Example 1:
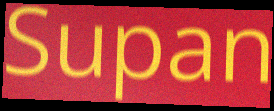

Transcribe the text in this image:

Supan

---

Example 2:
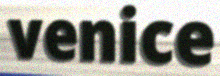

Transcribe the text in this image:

venice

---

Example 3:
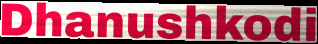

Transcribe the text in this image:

Dhanushkodi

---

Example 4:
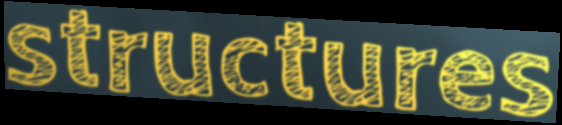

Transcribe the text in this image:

structures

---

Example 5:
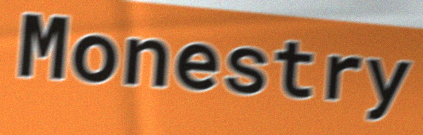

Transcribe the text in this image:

Monestry